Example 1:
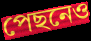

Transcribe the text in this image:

পেছনেও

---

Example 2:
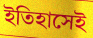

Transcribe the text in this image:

ইতিহাসেই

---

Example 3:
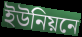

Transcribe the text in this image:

ইউনিয়নে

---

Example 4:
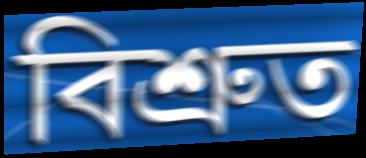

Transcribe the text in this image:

বিশ্রুত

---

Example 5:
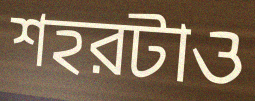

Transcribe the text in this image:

শহরটাও